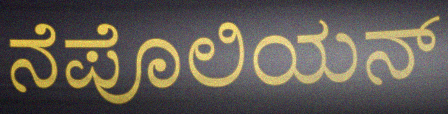
ನೆಪೊಲಿಯನ್